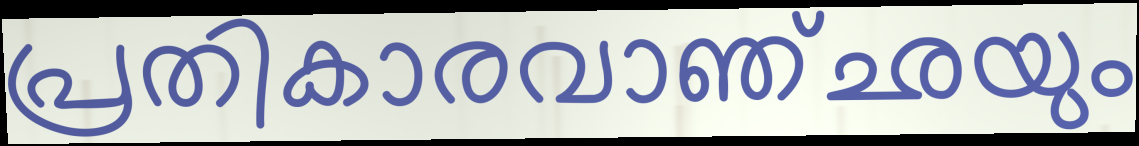
പ്രതികാരവാഞ്ഛയും